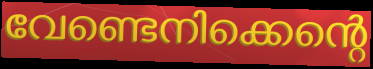
വേണ്ടെനിക്കെന്റെ